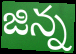
జిన్న